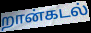
றான்கடல்